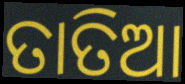
ତାତିଆ